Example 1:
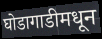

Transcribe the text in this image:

घोडागाडीमधून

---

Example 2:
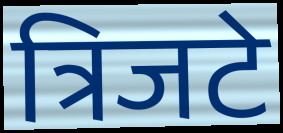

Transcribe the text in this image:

त्रिजटे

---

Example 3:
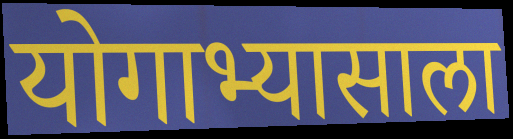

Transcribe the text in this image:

योगाभ्यासाला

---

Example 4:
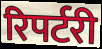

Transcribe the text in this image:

रिपर्टरी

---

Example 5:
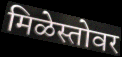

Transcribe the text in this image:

मिळेस्तोवर